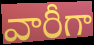
వారీగా